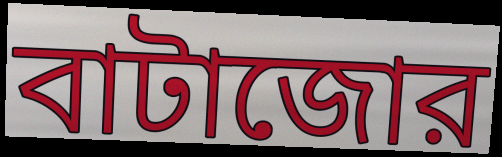
বাটাজোর